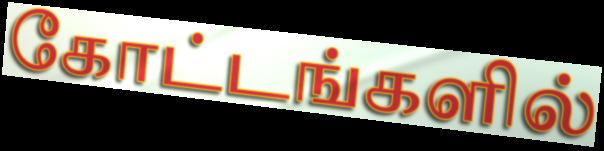
கோட்டங்களில்